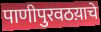
पाणीपुरवठय़ाचे